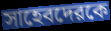
সাহেবদেরকে